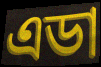
এডা